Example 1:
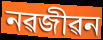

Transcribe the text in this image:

নৱজীৱন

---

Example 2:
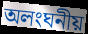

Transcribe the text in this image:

অলংঘনীয়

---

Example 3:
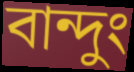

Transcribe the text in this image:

বান্দুং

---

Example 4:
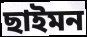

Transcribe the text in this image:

ছাইমন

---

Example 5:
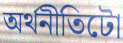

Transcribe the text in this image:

অৰ্থনীতিটো